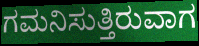
ಗಮನಿಸುತ್ತಿರುವಾಗ